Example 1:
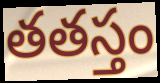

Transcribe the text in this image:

తతస్తం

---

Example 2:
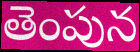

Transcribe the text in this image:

తెంపున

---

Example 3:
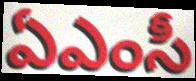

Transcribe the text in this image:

ఏఎంసీ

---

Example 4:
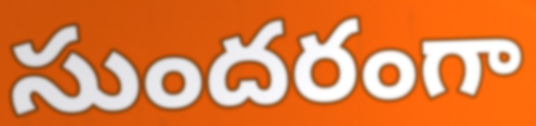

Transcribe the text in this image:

సుందరంగా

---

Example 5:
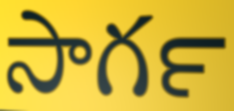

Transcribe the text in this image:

సాగర్‍